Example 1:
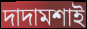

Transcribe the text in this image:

দাদামশাই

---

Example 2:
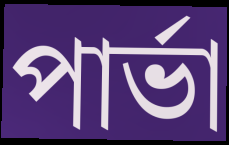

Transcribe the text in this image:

পার্ভা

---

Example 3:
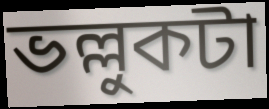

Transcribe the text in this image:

ভল্লুকটা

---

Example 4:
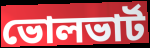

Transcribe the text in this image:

ভোলভার্ট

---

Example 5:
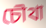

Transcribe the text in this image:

চৌথা